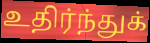
உதிர்ந்துக்